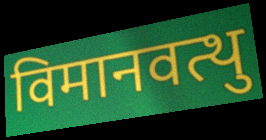
विमानवत्थु